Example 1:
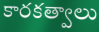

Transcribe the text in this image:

కారకత్వాలు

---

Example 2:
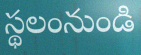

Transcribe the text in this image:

స్థలంనుండి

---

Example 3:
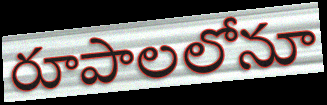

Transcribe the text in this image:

రూపాలలోనూ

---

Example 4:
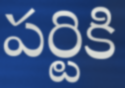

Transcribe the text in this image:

పర్టికి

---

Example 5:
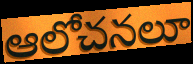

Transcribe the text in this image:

ఆలోచనలూ